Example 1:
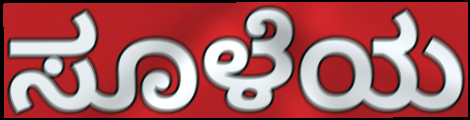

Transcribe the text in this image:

ಸೂಳೆಯ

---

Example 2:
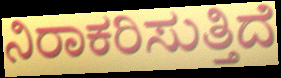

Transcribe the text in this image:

ನಿರಾಕರಿಸುತ್ತಿದೆ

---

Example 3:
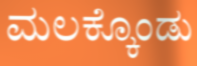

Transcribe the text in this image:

ಮಲಕ್ಕೊಂಡು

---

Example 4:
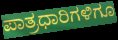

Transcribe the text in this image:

ಪಾತ್ರಧಾರಿಗಳಿಗೂ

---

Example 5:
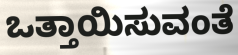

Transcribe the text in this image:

ಒತ್ತಾಯಿಸುವಂತೆ